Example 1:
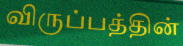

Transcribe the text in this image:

விருப்பத்தின்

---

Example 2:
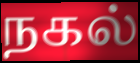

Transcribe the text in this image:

நகல்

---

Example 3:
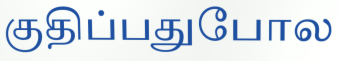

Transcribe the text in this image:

குதிப்பதுபோல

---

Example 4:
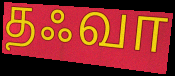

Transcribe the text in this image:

தஃவா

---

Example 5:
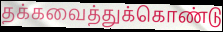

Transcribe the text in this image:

தக்கவைத்துக்கொண்டு